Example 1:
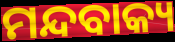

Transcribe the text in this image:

ମନ୍ଦବାକ୍ୟ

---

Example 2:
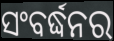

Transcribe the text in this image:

ସଂବର୍ଦ୍ଧନର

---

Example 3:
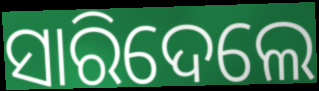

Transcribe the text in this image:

ସାରିଦେଲେ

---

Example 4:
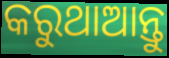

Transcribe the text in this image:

କରୁଥାଆନ୍ତୁ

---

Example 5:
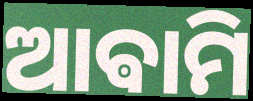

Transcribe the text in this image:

ଆଵାମି